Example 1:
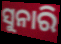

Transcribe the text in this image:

ସୁନାରି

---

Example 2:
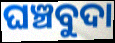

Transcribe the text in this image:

ଘଞ୍ଚବୁଦା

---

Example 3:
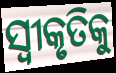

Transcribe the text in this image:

ସ୍ୱୀକୃତିକୁ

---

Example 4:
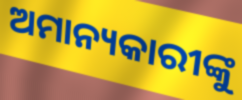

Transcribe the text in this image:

ଅମାନ୍ୟକାରୀଙ୍କୁ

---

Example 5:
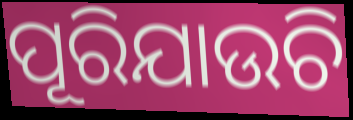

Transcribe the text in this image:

ପୂରିଯାଉଚି